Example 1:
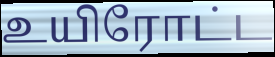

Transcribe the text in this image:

உயிரோட்ட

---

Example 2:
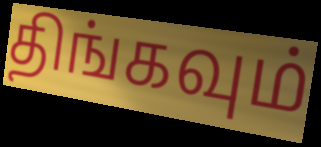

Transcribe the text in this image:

திங்கவும்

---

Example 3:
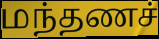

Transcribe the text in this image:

மந்தணச்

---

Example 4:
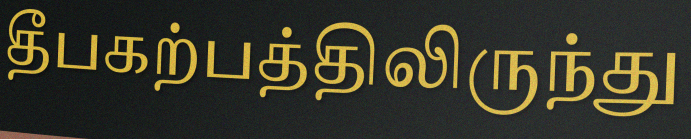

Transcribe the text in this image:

தீபகற்பத்திலிருந்து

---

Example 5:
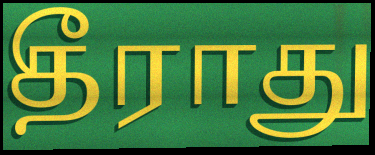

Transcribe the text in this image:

தீராது